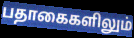
பதாகைகளிலும்